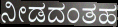
ನೀಡದಂತಹ